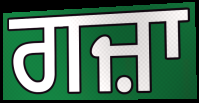
ਗਜ਼ਾ